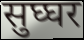
सुघ्घर